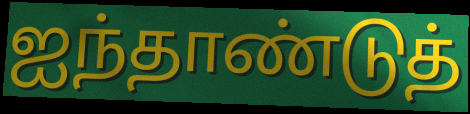
ஐந்தாண்டுத்